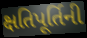
ક્ષતિપૂર્તિની